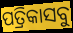
ପତ୍ରିକାସବୁ